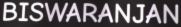
BISWARANJAN